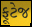
ફૂટેજ